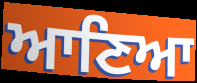
ਆਣਿਆ